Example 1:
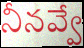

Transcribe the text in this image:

నీనవ్వే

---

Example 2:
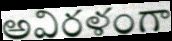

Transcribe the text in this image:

అవిరళంగా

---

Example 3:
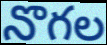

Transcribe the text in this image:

నొగల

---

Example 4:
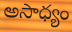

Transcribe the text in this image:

అసాధ్యం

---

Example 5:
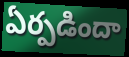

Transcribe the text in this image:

ఏర్పడిందా